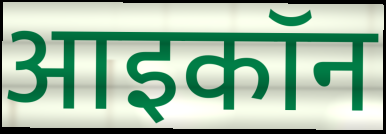
आइकॉन